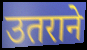
उतराने